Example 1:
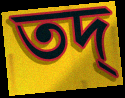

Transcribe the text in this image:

তদ্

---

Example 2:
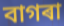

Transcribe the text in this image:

বাগৰা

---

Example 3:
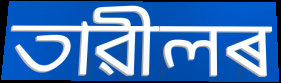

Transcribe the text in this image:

তাৱীলৰ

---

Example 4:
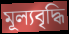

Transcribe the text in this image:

মূল্যবৃদ্ধি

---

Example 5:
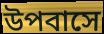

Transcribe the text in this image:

উপবাসে